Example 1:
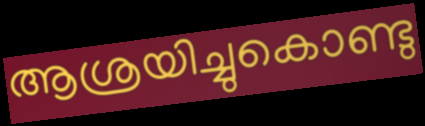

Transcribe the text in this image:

ആശ്രയിച്ചുകൊണ്ടു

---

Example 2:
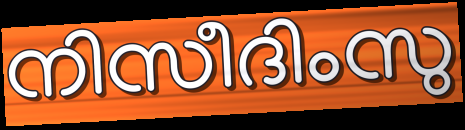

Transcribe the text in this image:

നിസീദിംസു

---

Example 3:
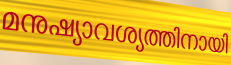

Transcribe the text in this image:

മനുഷ്യാവശ്യത്തിനായി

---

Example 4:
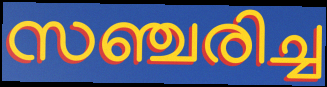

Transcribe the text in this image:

സഞ്ചരിച്ച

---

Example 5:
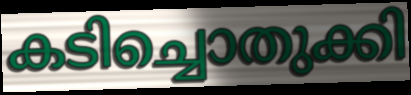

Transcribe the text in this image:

കടിച്ചൊതുക്കി